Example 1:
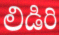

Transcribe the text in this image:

లిడిరి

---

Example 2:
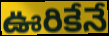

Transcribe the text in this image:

ఊరికేనే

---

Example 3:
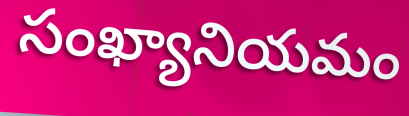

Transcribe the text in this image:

సంఖ్యానియమం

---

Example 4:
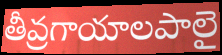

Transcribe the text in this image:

తీవ్రగాయాలపాలై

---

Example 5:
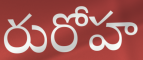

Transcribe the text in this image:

రురోహ